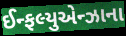
ઈન્ફલ્યુએન્ઝાના